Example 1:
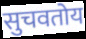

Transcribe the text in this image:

सुचवतोय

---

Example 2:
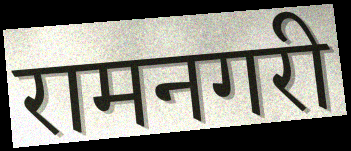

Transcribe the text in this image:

रामनगरी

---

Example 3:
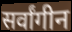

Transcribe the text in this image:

सर्वांगीन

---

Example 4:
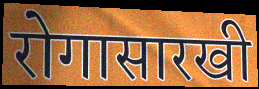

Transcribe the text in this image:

रोगासारखी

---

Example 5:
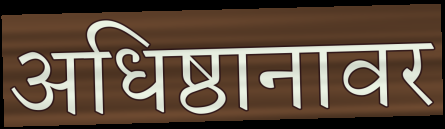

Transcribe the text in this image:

अधिष्ठानावर